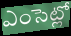
ఎంసెట్లో